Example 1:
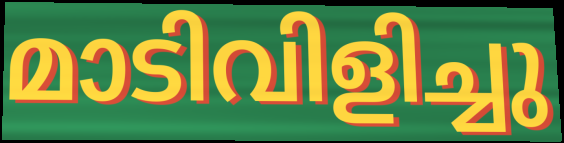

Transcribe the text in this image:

മാടിവിളിച്ചു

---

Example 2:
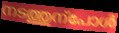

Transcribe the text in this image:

നടത്തുന്പോൾ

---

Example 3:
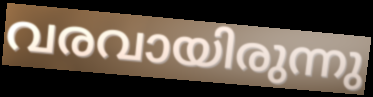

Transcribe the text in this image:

വരവായിരുന്നു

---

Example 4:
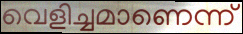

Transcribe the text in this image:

വെളിച്ചമാണെന്ന്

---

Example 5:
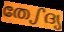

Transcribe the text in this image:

തേഽദ്യ